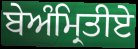
ਬੇਅੰਮ੍ਰਿਤੀਏ